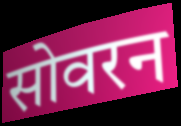
सोवरन